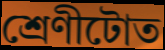
শ্ৰেণীটোত